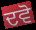
ਦਵੋ